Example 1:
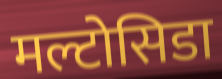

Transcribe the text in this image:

मल्टोसिडा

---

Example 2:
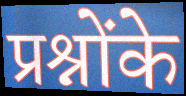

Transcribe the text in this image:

प्रश्नोंके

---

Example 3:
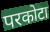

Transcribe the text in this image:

परकोटा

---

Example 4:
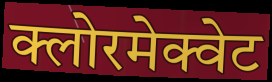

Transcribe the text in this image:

क्लोरमेक्वेट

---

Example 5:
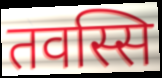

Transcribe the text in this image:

तवस्सि